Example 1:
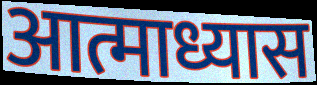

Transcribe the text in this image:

आत्माध्यास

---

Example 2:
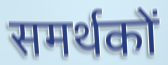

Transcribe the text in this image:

समर्थकों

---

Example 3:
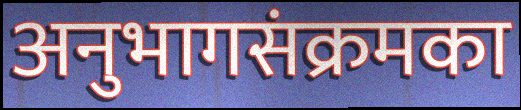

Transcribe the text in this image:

अनुभागसंक्रमका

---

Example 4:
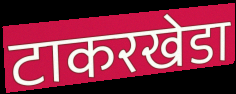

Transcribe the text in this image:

टाकरखेडा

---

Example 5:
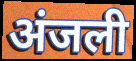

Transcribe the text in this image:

अंजली